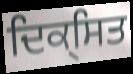
ਦਿਕ੍ਸਿਤ